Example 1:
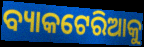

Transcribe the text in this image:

ବ୍ୟାକଟେରିଆକୁ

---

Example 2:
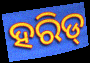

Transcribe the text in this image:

ହରିଡ୍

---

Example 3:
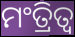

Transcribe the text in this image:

ମଂତ୍ରିତ୍ୱ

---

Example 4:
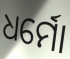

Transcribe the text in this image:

ଧର୍ମୋ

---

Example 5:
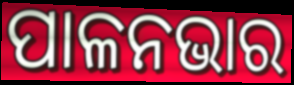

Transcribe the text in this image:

ପାଳନଭାର